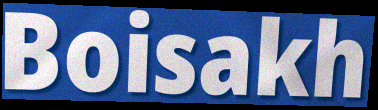
Boisakh